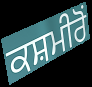
ਕਸ਼ਮੀਰੋਂ